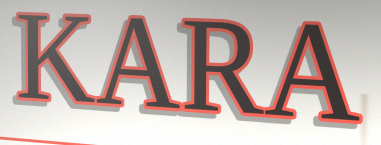
KARA